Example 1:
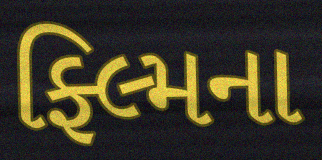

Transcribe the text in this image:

ફ્લ્મિના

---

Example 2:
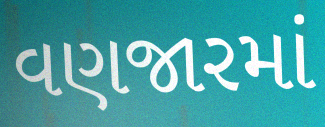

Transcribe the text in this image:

વણજારમાં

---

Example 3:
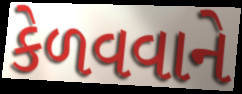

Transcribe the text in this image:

કેળવવાને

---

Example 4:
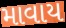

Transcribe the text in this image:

માવાય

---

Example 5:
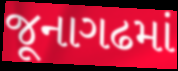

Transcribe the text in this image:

જૂનાગઢમાં